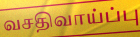
வசதிவாய்ப்பு